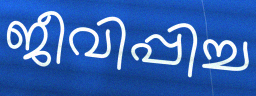
ജീവിപ്പിച്ച